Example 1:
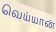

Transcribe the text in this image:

வெய்யான்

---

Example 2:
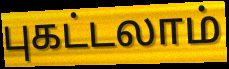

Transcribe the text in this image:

புகட்டலாம்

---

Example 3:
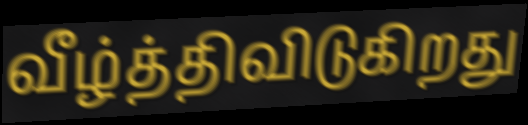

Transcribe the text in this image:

வீழ்த்திவிடுகிறது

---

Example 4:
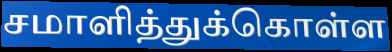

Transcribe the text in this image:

சமாளித்துக்கொள்ள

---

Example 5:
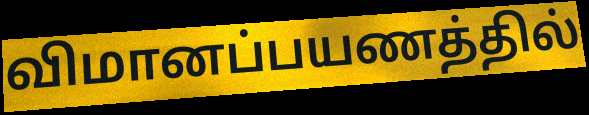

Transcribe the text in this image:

விமானப்பயணத்தில்